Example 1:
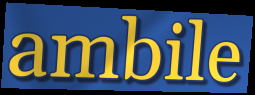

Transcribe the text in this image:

ambile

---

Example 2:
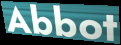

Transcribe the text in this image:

Abbot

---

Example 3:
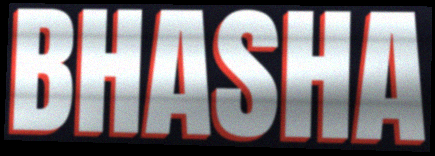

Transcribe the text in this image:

BHASHA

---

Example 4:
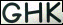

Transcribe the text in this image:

GHK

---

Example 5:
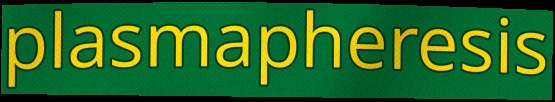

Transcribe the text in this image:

plasmapheresis